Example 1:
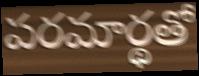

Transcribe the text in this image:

పరమార్థతో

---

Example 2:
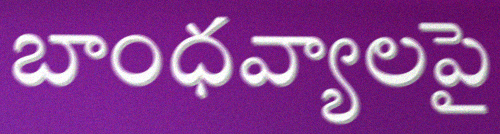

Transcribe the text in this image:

బాంధవ్యాలపై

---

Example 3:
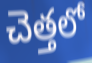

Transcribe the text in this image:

చెత్తలో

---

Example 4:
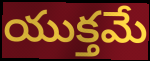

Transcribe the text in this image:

యుక్తమే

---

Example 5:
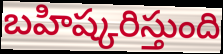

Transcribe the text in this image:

బహిష్కరిస్తుంది